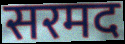
सरमद